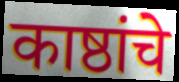
काष्ठांचे